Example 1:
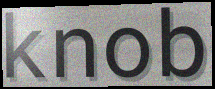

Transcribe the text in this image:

knob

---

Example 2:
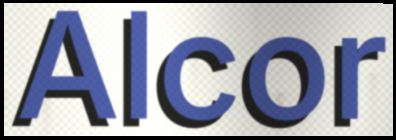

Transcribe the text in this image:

Alcor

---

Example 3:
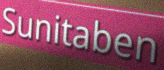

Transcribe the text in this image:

Sunitaben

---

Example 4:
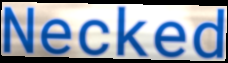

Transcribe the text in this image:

Necked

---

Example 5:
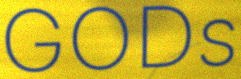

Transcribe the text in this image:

GODs